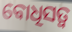
ବୋଧିସତ୍ବ